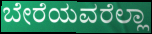
ಬೇರೆಯವರೆಲ್ಲಾ